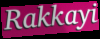
Rakkayi